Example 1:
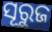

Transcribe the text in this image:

ସୂରୁଜ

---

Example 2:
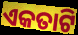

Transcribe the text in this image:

ଏକତାଟି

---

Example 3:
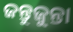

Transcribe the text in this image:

ଜନ୍ତୁଜୁନ୍ତା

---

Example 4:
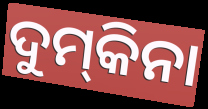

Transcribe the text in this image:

ଦୁମ୍‌କିନା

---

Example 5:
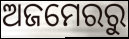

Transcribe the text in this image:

ଅଜମେରରୁ